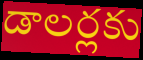
డాలర్లకు